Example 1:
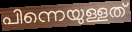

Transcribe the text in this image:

പിന്നെയുള്ളത്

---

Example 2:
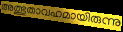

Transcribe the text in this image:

അത്ഭുതാവഹമായിരുന്നു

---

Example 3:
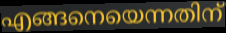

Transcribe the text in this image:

എങ്ങനെയെന്നതിന്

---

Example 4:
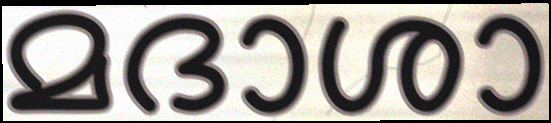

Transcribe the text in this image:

മദാശാ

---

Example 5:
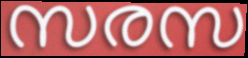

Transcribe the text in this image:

സരസ